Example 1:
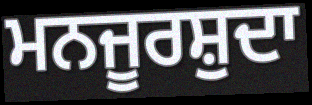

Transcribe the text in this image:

ਮਨਜੂਰਸ਼ੁਦਾ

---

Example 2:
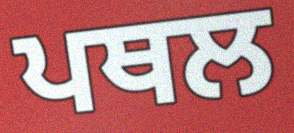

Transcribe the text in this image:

ਪਥਲ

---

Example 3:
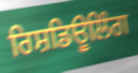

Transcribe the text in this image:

ਰਿਸ਼ਡਿਊਲਿੰਗ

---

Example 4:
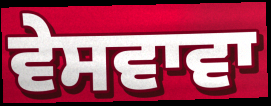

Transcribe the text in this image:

ਵੇਸਵਾਵਾ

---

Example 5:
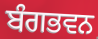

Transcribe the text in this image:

ਬੰਗਭਵਨ